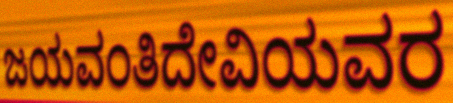
ಜಯವಂತಿದೇವಿಯವರ